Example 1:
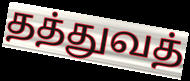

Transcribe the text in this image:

தத்துவத்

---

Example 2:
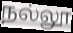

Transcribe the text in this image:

நல்லூ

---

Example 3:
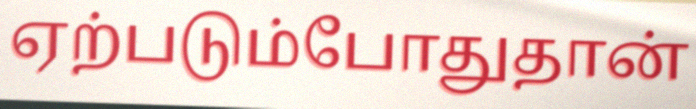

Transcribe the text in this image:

ஏற்படும்போதுதான்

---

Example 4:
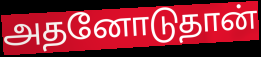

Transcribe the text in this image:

அதனோடுதான்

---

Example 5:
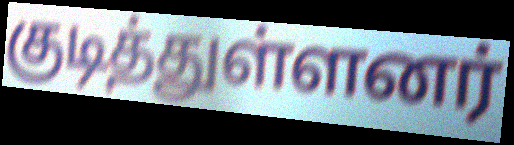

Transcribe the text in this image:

குடித்துள்ளனர்